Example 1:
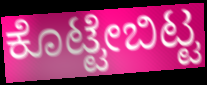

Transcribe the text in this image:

ಕೊಟ್ಟೇಬಿಟ್ಟ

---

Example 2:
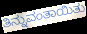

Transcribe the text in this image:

ತಿನ್ನುವಂತಾಯಿತು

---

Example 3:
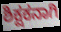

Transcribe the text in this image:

ಶಿಕ್ಷಕನಾಗಿ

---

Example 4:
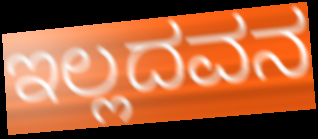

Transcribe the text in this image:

ಇಲ್ಲದವನ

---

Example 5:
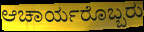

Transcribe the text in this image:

ಆಚಾರ್ಯರೊಬ್ಬರು